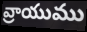
వ్రాయుము